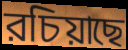
রচিয়াছে